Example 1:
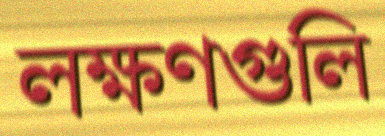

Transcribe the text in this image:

লক্ষণগুলি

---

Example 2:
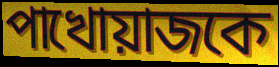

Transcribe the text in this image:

পাখোয়াজকে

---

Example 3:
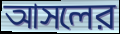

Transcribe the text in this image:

আসলের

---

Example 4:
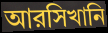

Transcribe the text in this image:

আরসিখানি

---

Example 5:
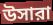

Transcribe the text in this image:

উসারা